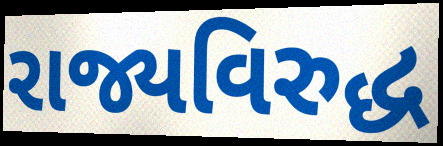
રાજ્યવિરુદ્ધ